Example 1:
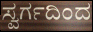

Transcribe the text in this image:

ಸ್ವರ್ಗದಿಂದ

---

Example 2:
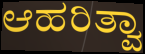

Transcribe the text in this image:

ಆಹರಿತ್ವಾ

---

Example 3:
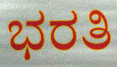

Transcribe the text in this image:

ಭರತಿ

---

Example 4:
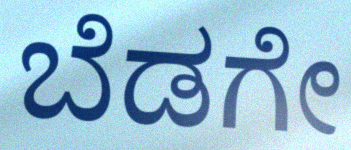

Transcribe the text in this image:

ಬೆಡಗೇ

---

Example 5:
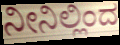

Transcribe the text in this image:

ನೀನಿಲ್ಲಿಂದ